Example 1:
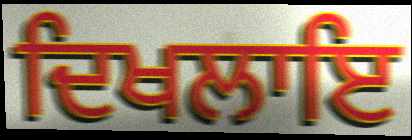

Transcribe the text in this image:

ਦਿਖਲਾਇ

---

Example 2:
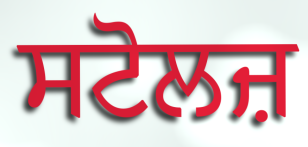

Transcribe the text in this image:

ਸਟੋਲਜ਼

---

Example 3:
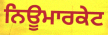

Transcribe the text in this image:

ਨਿਊਮਾਰਕੇਟ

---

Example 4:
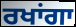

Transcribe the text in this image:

ਰਖਾਂਗਾ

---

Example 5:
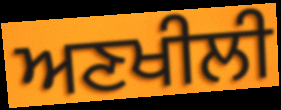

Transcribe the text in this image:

ਅਣਖੀਲੀ